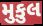
મુકુલ